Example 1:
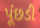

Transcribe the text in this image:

પૂંછડી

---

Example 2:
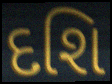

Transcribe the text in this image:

દશિ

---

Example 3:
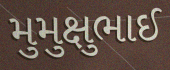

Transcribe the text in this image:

મુમુક્ષુભાઈ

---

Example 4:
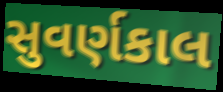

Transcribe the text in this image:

સુવર્ણકાલ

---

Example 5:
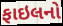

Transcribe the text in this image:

ફાઇલનો